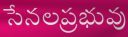
సేనలప్రభువు